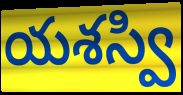
యశస్వి